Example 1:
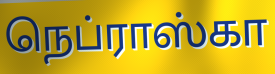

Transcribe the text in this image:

நெப்ராஸ்கா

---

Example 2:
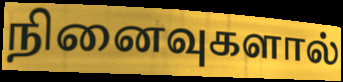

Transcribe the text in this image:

நினைவுகளால்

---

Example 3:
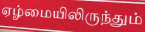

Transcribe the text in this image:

ஏழ்மையிலிருந்தும்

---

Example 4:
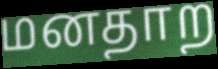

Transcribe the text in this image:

மனதாற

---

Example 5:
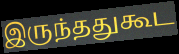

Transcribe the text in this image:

இருந்ததுகூட